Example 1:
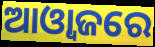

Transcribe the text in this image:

ଆଓ୍ୱାଜରେ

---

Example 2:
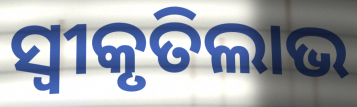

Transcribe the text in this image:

ସ୍ଵୀକୃତିଲାଭ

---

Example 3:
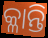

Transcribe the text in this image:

କ୍ଳାନ୍ତି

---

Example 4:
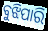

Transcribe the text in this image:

ବୁଝିପାରି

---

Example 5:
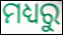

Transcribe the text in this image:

ମଧ୍ୟରୁ